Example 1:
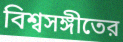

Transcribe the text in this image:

বিশ্বসঙ্গীতের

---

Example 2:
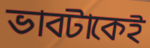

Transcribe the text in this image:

ভাবটাকেই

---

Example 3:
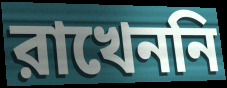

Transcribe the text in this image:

রাখেননি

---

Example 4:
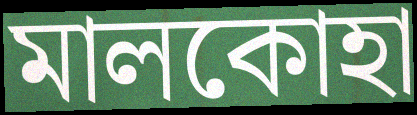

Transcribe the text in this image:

মালকোহা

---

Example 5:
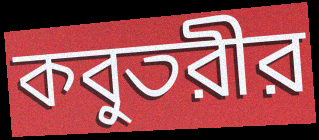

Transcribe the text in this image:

কবুতরীর